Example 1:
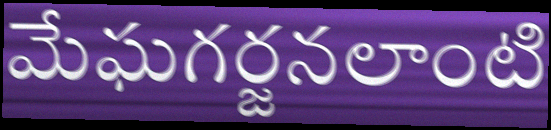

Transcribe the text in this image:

మేఘగర్జనలాంటి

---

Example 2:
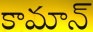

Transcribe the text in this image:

కామాన్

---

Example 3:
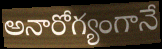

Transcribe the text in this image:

అనారోగ్యంగానే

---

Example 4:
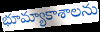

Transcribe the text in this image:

భూమ్యాకాశాలను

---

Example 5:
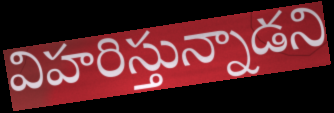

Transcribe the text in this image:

విహరిస్తున్నాడని